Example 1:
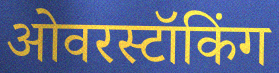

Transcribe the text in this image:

ओवरस्टॉकिंग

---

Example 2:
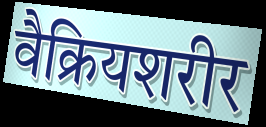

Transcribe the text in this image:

वैक्रियशरीर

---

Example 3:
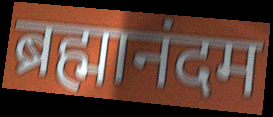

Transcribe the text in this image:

ब्रह्मानंदम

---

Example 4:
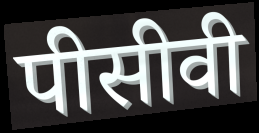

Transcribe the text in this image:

पीसीवी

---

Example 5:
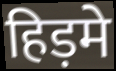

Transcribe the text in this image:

हिड़मे